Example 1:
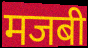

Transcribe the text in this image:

मजबी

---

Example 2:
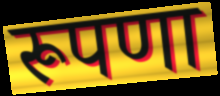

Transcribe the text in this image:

रूपणा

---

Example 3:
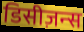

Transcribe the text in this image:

डिसीज़न्स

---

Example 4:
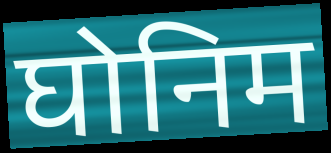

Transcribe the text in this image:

घोनिम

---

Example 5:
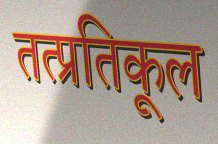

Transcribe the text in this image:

तत्प्रतिकूल